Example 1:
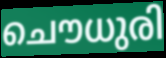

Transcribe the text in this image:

ചൌധുരി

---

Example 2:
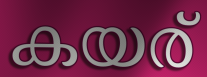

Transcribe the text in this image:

കയര്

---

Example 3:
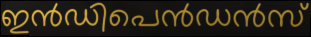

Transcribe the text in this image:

ഇൻഡിപെൻഡൻസ്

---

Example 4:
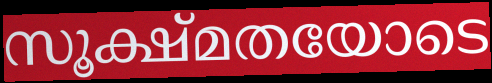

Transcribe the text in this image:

സൂക്ഷ്മതയോടെ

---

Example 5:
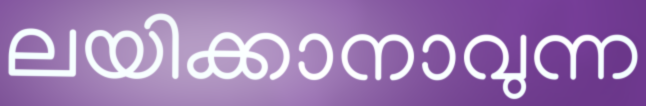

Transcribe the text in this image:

ലയിക്കാനാവുന്ന